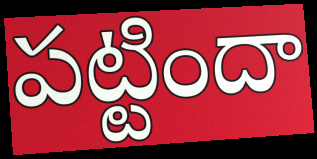
పట్టిందా